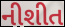
નીશીત